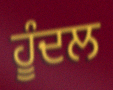
ਹੂੰਦਲ